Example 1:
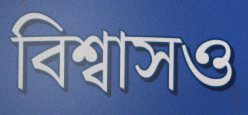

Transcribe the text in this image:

বিশ্বাসও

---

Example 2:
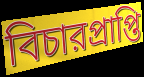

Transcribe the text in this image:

বিচারপ্রাপ্তি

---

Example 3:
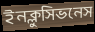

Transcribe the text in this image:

ইনক্লুসিভনেস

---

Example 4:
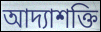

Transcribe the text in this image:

আদ্যাশক্তি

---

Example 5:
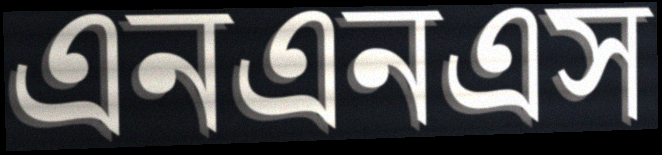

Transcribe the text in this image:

এনএনএস